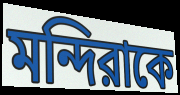
মন্দিরাকে